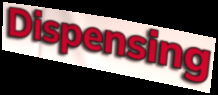
Dispensing